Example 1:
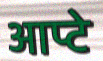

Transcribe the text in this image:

आप्टे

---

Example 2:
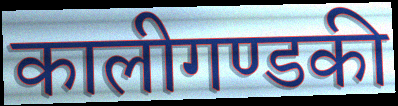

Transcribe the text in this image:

कालीगण्डकी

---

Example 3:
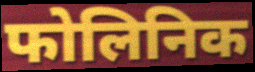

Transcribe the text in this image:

फोलिनिक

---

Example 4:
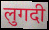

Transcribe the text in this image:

लुगदी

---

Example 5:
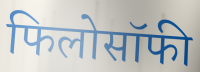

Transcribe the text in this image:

फिलोसॉफी